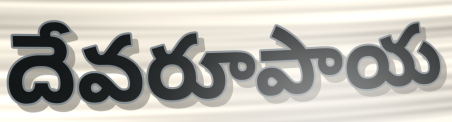
దేవరూపాయ